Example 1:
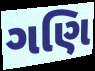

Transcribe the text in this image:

ગણિ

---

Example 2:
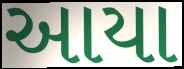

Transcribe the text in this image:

આયા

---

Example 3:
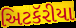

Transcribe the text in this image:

અિટકૅરીયા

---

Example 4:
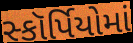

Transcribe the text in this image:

સ્કૉર્પિયોમાં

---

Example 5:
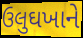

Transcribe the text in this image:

ઉલુઘખાને